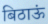
बिठाऊं